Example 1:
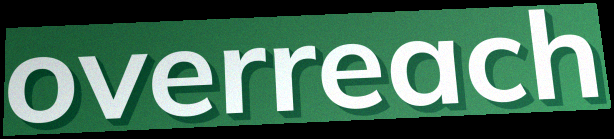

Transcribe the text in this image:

overreach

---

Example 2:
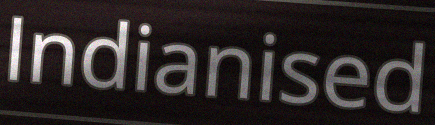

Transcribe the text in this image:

Indianised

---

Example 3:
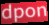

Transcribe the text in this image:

dpon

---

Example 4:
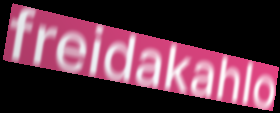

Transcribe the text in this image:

freidakahlo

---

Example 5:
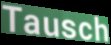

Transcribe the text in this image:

Tausch